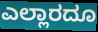
ಎಲ್ಲಾರದೂ